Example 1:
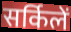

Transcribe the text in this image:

सर्किलें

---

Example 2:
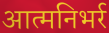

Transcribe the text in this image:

आत्मनिभर्र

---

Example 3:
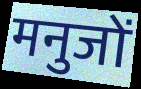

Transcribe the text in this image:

मनुजों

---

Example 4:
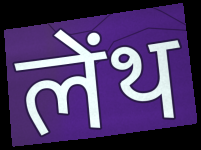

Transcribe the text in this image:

लेंथ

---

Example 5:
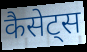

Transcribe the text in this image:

कैसेट्स